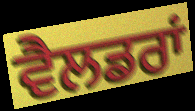
ਵੈਲਡਰਾਂ